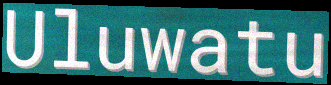
Uluwatu